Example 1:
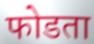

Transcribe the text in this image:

फोडता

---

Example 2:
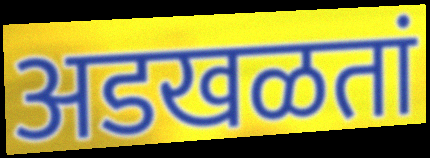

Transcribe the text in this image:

अडखळतां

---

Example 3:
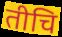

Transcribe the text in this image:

तीचि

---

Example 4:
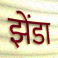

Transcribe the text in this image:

झेंडा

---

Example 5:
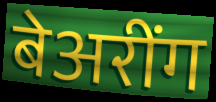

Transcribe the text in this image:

बेअरींग